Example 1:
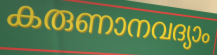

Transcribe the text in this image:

കരുണാനവദ്യാം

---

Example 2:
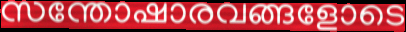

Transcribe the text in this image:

സന്തോഷാരവങ്ങളോടെ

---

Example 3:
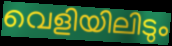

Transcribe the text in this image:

വെളിയിലിടും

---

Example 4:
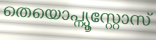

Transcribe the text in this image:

തെയൊപ്ന്യൂസ്റ്റോസ്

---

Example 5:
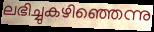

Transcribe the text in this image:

ലഭിച്ചുകഴിഞ്ഞെന്നു